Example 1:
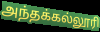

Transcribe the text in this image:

அந்தக்கல்லூரி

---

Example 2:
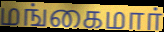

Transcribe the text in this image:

மங்கைமார்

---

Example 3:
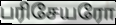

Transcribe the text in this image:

பரிசேயரோ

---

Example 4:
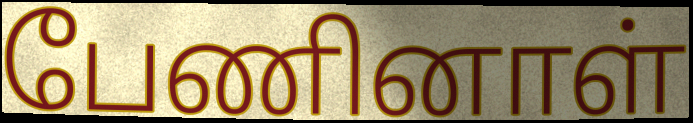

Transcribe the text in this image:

பேணினாள்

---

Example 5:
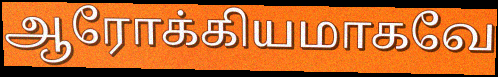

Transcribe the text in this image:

ஆரோக்கியமாகவே